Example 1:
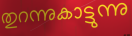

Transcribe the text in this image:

തുറന്നുകാട്ടുന്നു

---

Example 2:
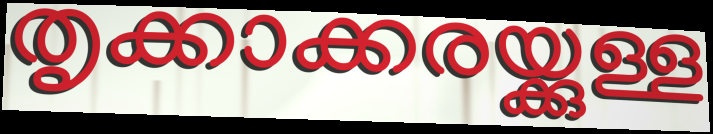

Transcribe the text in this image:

തൃക്കാക്കരയ്ക്കുള്ള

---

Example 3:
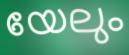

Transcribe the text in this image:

യേലും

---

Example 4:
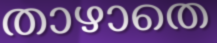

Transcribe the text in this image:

താഴാതെ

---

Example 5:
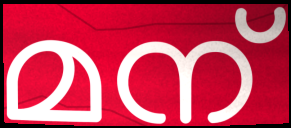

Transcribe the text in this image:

മന്